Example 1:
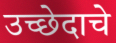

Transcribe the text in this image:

उच्छेदाचे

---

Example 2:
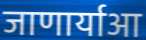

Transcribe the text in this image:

जाणार्याआ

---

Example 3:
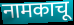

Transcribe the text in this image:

नामकाचू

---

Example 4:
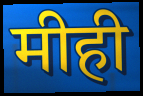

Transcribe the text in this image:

मीही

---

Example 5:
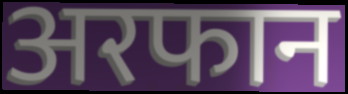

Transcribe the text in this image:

अरफान